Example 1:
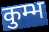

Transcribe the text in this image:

कुम्भ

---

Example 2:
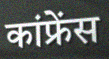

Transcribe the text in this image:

कांफ्रेंस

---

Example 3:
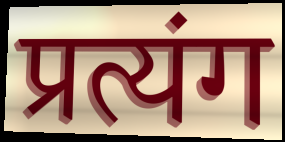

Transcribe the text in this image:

प्रत्यंग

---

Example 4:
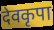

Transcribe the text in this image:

देवकृपा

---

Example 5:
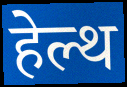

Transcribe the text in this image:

हेल्थ